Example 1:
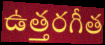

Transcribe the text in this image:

ఉత్తరగీత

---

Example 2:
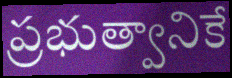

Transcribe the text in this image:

ప్రభుత్వానికే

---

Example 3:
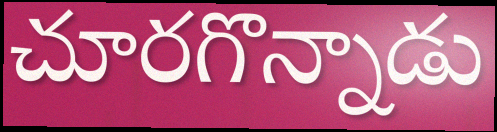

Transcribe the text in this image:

చూరగొన్నాడు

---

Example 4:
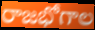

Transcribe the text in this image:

రాజభోగాల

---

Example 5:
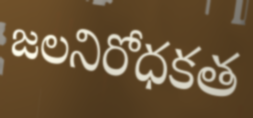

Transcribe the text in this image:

జలనిరోధకత